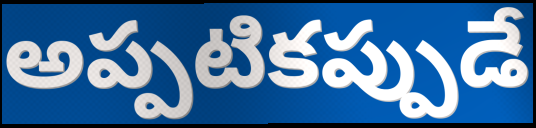
అప్పటికప్పుడే